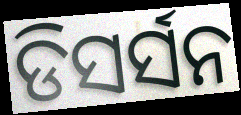
ଡିସର୍ସନ